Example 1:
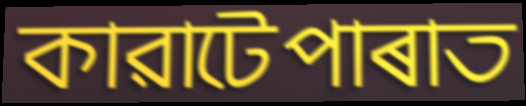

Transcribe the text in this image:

কাৱাটেপাৰাত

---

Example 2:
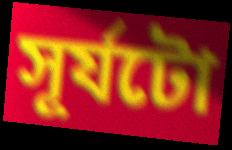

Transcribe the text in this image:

সূৰ্যটো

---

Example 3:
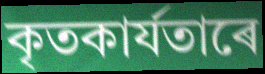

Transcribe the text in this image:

কৃতকাৰ্যতাৰে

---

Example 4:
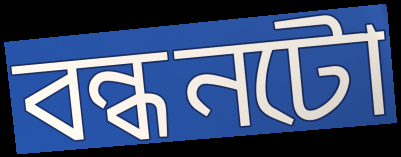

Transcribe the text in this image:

বন্ধনটো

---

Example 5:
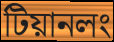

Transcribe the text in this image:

টিয়ানলং